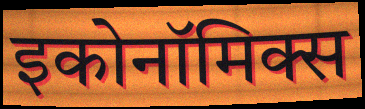
इकोनॉमिक्स